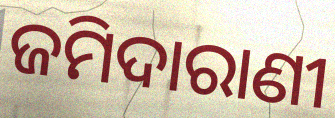
ଜମିଦାରାଣୀ